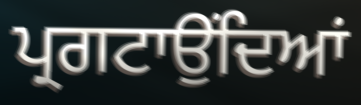
ਪ੍ਰਗਟਾਉਂਦਿਆਂ